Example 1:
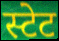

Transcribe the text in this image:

स्टेट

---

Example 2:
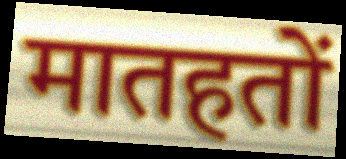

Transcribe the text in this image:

मातहतों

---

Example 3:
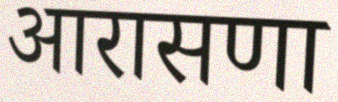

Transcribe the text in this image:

आरासणा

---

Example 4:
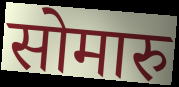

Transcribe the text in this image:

सोमारु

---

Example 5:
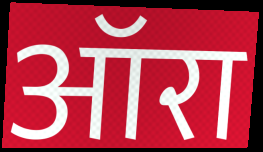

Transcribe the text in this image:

ऑरा